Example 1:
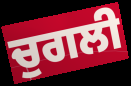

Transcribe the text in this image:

ਚੁਗਲੀ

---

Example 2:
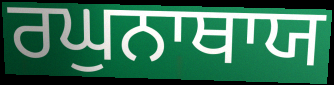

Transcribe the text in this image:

ਰਘੁਨਾਥਾਯ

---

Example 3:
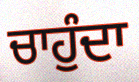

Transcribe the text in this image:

ਚਾਹੁੰਦਾ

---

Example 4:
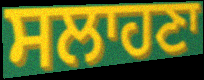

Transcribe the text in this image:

ਸਲਾਹਣਾ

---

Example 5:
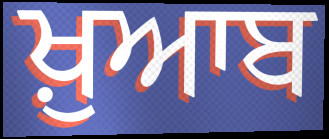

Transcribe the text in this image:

ਖ਼ੁਆਬ